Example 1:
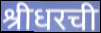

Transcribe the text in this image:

श्रीधरची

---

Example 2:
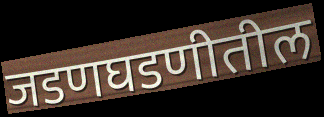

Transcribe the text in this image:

जडणघडणीतील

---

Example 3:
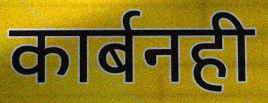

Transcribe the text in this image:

कार्बनही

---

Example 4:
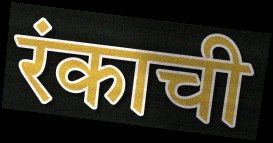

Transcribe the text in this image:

रंकाची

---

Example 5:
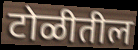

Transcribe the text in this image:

टोळीतील